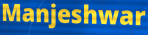
Manjeshwar